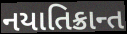
નયાતિક્રાન્ત